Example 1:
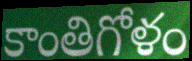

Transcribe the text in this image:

కాంతిగోళం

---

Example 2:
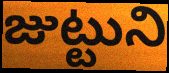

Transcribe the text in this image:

జుట్టుని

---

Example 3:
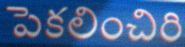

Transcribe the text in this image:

పెకలించిరి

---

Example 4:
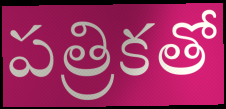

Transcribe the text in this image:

పత్రికతో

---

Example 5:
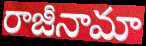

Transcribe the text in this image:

రాజీనామా